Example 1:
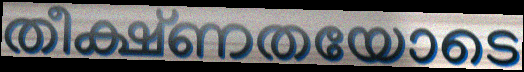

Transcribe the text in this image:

തീക്ഷ്ണതയോടെ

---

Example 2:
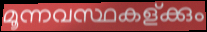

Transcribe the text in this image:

മൂന്നവസ്ഥകള്ക്കും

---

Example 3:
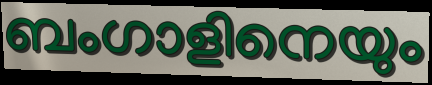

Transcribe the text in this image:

ബംഗാളിനെയും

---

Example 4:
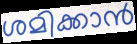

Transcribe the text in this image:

ശമിക്കാൻ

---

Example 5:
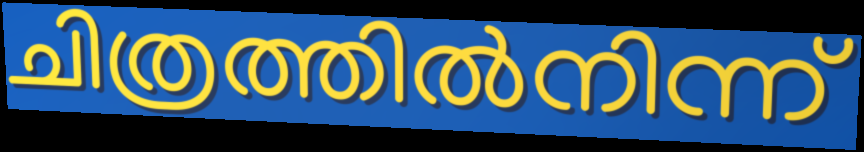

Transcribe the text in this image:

ചിത്രത്തിൽനിന്ന്